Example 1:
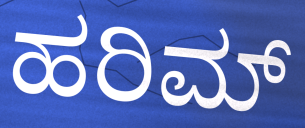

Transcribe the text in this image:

ಹರಿಮ್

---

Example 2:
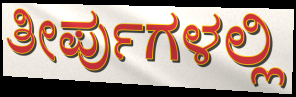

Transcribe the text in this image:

ತೀರ್ಪುಗಳಲ್ಲಿ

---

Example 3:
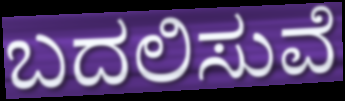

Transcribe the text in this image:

ಬದಲಿಸುವೆ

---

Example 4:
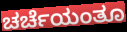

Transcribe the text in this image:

ಚರ್ಚೆಯಂತೂ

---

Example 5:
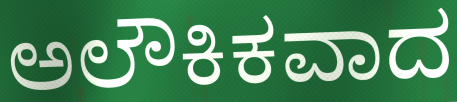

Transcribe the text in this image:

ಅಲೌಕಿಕವಾದ